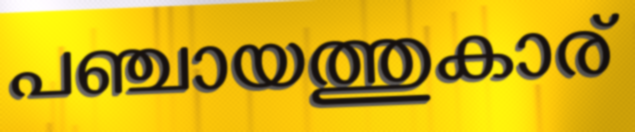
പഞ്ചായത്തുകാര്